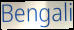
Bengali